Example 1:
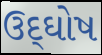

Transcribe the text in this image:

ઉદ્‌ઘોષ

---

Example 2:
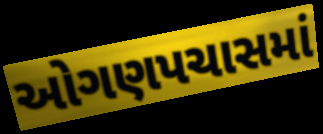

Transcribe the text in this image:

ઓગણપચાસમાં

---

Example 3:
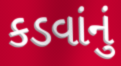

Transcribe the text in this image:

કડવાંનું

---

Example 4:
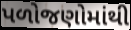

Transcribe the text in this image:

પળોજણોમાંથી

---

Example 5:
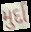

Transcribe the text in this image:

મુર્દા